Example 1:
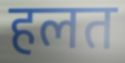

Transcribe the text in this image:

हलत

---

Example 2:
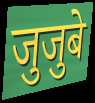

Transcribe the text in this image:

जुजुबे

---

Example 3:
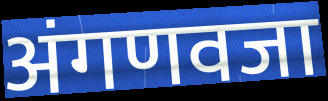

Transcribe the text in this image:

अंगणवजा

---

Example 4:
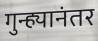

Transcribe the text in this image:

गुन्ह्यानंतर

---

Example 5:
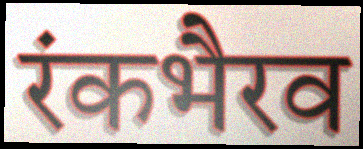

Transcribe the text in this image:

रंकभैरव